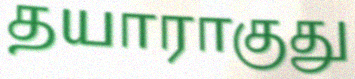
தயாராகுது